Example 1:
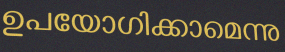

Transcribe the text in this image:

ഉപയോഗിക്കാമെന്നു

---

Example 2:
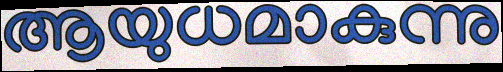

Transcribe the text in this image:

ആയുധമാകുന്നു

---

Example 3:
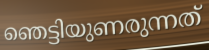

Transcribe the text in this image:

ഞെട്ടിയുണരുന്നത്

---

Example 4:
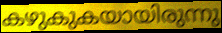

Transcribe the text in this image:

കഴുകുകയായിരുന്നു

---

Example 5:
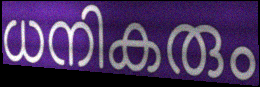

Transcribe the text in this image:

ധനികരും